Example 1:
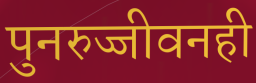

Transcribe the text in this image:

पुनरुज्जीवनही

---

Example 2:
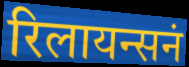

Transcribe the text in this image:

रिलायन्सनं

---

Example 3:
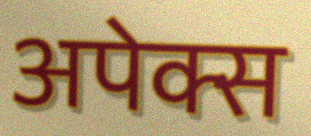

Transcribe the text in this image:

अपेक्स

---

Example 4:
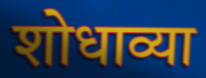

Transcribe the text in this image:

शोधाव्या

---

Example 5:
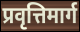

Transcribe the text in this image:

प्रवृत्तिमार्ग